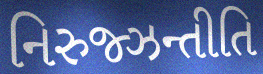
નિરુજ્ઝન્તીતિ